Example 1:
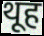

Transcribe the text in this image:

थूह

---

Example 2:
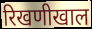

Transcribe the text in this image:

रिखणीखाल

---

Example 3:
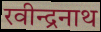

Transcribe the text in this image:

रवीन्‍द्रनाथ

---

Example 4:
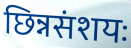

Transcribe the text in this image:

छिन्नसंशयः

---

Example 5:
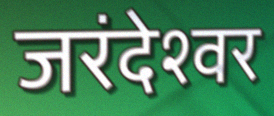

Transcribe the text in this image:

जरंदेश्वर